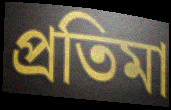
প্ৰতিমা